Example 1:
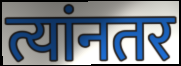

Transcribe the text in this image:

त्यांनतर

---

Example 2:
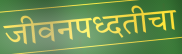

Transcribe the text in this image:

जीवनपध्दतीचा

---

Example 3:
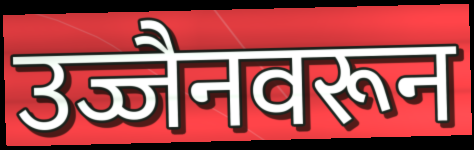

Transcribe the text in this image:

उज्जैनवरून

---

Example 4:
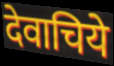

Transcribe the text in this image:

देवाचिये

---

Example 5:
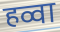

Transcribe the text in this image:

हव्वा